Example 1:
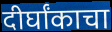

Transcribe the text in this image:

दीर्घांकाचा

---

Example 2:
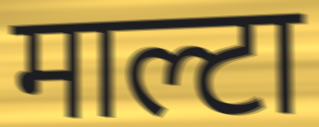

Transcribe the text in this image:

माल्टा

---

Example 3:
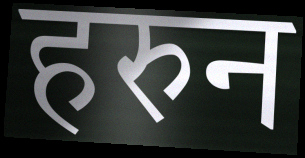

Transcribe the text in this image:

हरुन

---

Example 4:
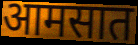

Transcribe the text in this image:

आमसात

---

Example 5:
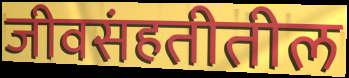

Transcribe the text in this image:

जीवसंहतीतील